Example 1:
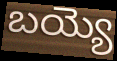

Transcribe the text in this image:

బయ్యె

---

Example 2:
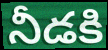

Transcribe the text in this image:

నీడకి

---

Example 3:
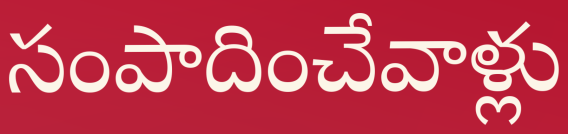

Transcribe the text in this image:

సంపాదించేవాళ్లు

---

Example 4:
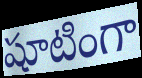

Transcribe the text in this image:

షూటింగా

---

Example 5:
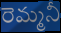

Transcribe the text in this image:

రెమ్మనీ